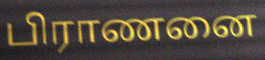
பிராணனை